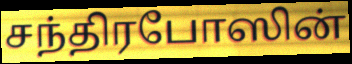
சந்திரபோஸின்